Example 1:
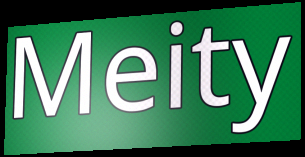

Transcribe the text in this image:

Meity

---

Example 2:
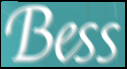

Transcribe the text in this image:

Bess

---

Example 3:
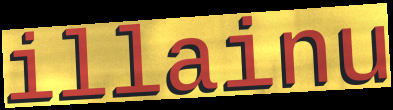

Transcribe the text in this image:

illainu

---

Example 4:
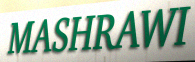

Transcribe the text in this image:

MASHRAWI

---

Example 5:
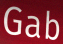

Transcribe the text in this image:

Gab